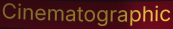
Cinematographic